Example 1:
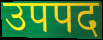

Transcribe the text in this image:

उपपद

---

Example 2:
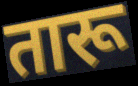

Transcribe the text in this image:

तारू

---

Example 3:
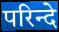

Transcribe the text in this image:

परिन्दे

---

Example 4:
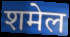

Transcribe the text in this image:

शमेल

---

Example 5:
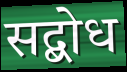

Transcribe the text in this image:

सद्बोध